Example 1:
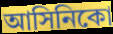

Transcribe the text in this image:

আসিনিকো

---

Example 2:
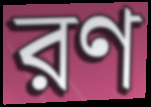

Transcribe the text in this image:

রণ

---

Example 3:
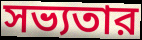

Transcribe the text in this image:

সভ্যতার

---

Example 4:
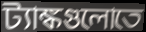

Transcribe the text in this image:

ট্যাঙ্কগুলোতে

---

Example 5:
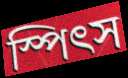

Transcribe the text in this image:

স্পিৎস